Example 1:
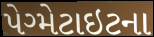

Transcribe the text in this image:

પેગ્મેટાઇટના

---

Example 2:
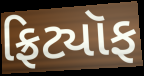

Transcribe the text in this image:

ફ્રિટ્યૉફ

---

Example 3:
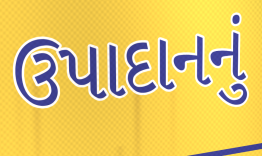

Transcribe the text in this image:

ઉપાદાનનું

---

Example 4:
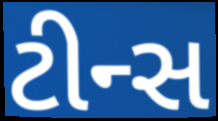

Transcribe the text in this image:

ટીન્સ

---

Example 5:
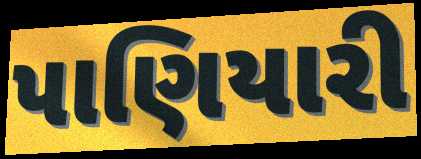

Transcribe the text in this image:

પાણિયારી